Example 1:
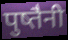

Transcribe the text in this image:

पुष्तैनी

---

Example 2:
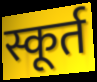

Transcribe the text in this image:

स्कूर्त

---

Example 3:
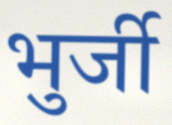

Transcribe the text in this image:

भुर्जी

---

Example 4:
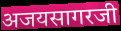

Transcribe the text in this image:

अजयसागरजी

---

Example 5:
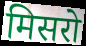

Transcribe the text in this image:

मिसरो